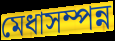
মেধাসম্পন্ন